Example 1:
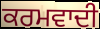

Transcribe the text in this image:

ਕਰਮਵਾਦੀ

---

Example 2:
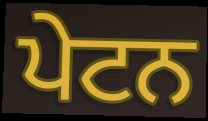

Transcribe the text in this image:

ਪੇਟਨ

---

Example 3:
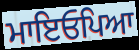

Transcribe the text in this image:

ਮਾਇਓਪਿਆ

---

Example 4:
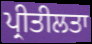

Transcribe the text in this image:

ਪ੍ਰੀਤੀਲਤਾ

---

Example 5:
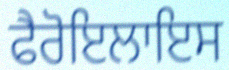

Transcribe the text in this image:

ਫੈਰੋਇਲਾਇਸ